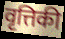
वृत्तिकी